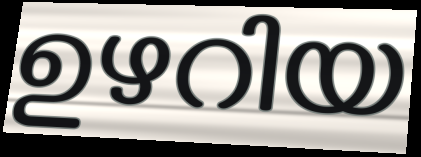
ഉഴറിയ